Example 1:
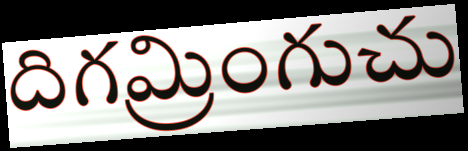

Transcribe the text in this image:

దిగమ్రింగుచు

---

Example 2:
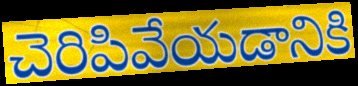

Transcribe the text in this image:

చెరిపివేయడానికి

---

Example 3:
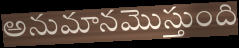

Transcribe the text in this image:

అనుమానమొస్తుంది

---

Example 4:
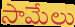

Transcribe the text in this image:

సామేలు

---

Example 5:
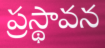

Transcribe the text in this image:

ప్రస్థావన